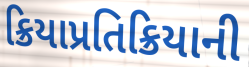
ક્રિયાપ્રતિક્રિયાની